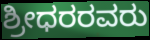
ಶ್ರೀಧರರವರು